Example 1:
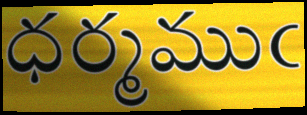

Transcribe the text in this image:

ధర్మముఁ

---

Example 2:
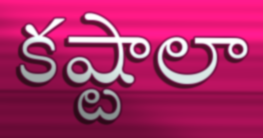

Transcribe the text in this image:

కష్టాలా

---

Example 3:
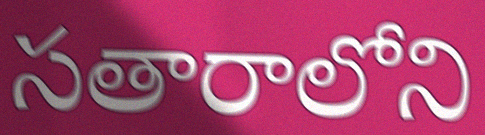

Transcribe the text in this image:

సతారాలోని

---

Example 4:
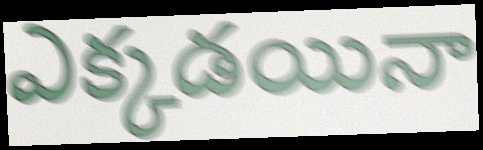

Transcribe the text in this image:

ఎక్కడయినా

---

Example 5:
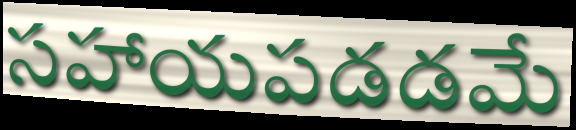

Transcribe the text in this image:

సహాయపడడమే